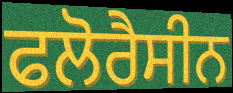
ਫਲੋਰੈਸੀਨ